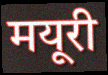
मयूरी